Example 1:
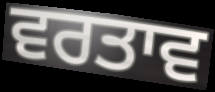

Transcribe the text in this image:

ਵਰਤਾਵ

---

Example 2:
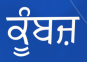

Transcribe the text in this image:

ਕੂੰਬਜ਼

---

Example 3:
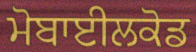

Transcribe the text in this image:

ਮੋਬਾਈਲਕੋਡ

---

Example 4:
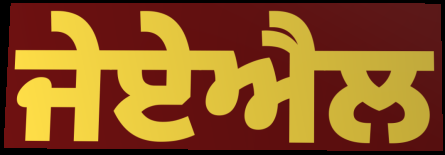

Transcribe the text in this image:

ਜੇਏਐਲ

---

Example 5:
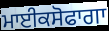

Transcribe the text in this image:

ਮਾਈਕਸੋਫਾਗਾ